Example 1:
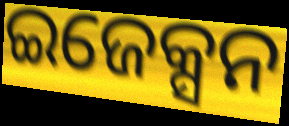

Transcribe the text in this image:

ଇଜେକ୍ସନ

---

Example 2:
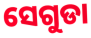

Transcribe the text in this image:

ସେଗୁଡା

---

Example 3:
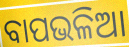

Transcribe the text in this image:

ବାପଭଳିଆ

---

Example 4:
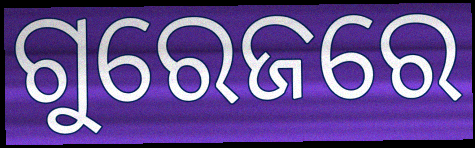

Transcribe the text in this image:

ଗୁରେଜରେ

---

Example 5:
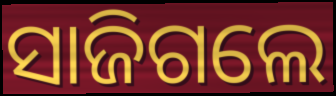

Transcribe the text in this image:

ସାଜିଗଲେ